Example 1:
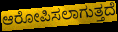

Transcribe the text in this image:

ಆರೋಪಿಸಲಾಗುತ್ತದೆ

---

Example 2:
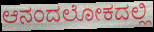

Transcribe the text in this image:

ಆನಂದಲೋಕದಲ್ಲಿ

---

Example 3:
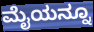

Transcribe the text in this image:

ಮೈಯನ್ನೂ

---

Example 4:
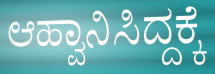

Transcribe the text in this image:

ಆಹ್ವಾನಿಸಿದ್ದಕ್ಕೆ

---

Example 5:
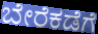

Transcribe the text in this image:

ಬೇರೆಕಡೆಗೆ